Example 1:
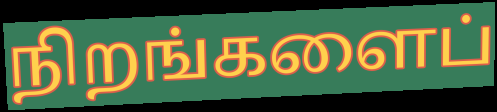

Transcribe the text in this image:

நிறங்களைப்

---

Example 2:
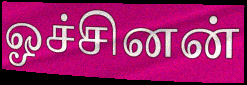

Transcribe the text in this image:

ஓச்சினன்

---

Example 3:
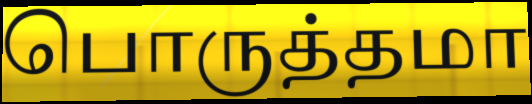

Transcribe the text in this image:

பொருத்தமா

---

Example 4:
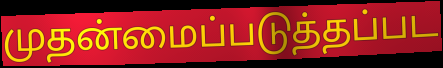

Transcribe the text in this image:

முதன்மைப்படுத்தப்பட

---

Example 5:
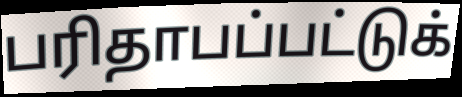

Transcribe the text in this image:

பரிதாபப்பட்டுக்